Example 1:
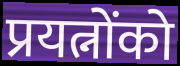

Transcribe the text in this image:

प्रयत्नोंको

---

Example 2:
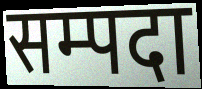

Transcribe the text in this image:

सम्पदा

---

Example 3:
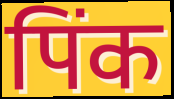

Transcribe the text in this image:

पिंक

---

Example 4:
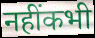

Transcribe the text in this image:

नहींकभी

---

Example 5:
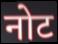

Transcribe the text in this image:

नोट